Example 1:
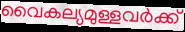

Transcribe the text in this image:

വൈകല്യമുള്ളവർക്ക്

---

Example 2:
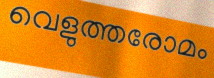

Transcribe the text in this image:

വെളുത്തരോമം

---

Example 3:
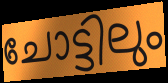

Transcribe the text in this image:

ചോട്ടിലും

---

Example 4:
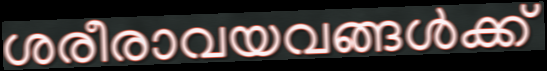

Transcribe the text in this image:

ശരീരാവയവങ്ങൾക്ക്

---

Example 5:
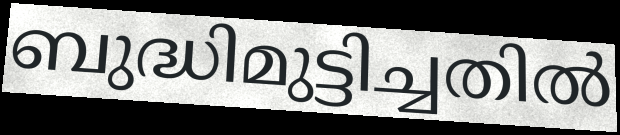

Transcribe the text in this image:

ബുദ്ധിമുട്ടിച്ചതിൽ